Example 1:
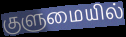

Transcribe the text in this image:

குளுமையில்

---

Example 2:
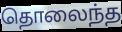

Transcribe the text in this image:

தொலைந்த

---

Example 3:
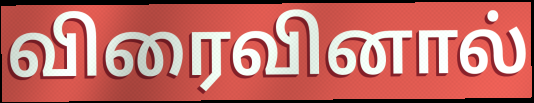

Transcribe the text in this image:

விரைவினால்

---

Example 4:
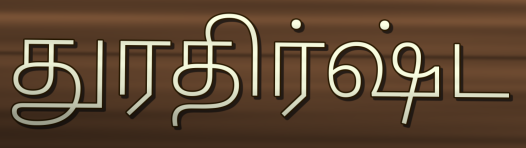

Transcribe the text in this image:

துரதிர்ஷ்ட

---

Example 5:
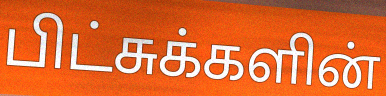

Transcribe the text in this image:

பிட்சுக்களின்